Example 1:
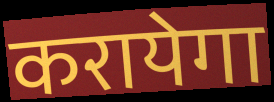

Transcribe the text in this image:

करायेगा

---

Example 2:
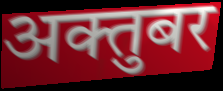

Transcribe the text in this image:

अक्तुबर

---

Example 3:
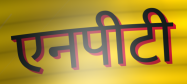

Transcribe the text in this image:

एनपीटी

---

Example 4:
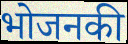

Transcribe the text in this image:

भोजनकी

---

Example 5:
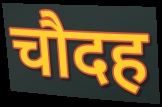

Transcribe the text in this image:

चौदह